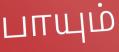
பாயும்